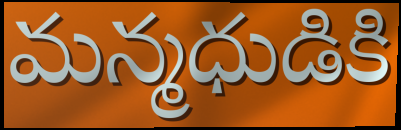
మన్మధుడికి